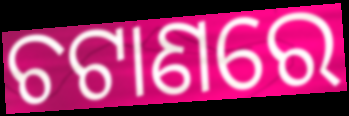
ଚଟାଣରେ